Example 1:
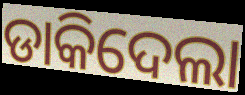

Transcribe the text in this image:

ଡାକିଦେଲା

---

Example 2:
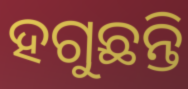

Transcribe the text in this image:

ହଗୁଛନ୍ତି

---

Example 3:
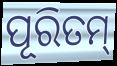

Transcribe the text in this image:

ପୂରିତମ୍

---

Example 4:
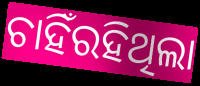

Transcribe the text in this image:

ଚାହିଁରହିଥିଲା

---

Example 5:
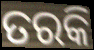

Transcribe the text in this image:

ତରକି